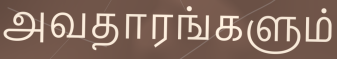
அவதாரங்களும்